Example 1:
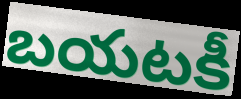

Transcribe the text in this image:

బయటకీ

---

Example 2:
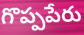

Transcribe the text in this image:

గొప్పపేరు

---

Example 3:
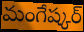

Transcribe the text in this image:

మంగేష్కర్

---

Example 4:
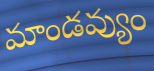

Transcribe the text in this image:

మాండవ్యుం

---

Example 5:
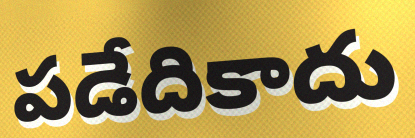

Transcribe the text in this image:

పడేదికాదు